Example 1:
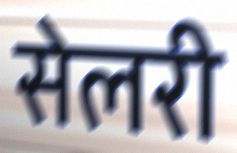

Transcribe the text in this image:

सेलरी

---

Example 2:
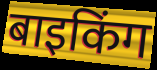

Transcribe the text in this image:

बाइकिंग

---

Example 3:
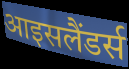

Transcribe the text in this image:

आइसलैंडर्स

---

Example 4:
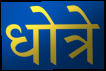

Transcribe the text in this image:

धोत्रे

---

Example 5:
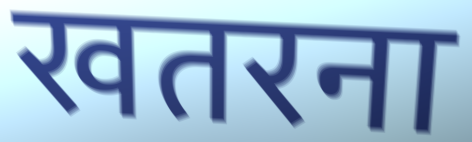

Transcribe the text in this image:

खतरना